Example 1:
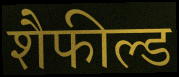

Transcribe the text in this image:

शैफील्ड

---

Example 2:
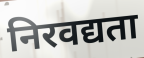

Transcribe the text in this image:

निरवद्यता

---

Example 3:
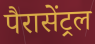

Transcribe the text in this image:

पैरासेंट्रल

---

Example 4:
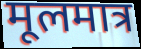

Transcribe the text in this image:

मूलमात्र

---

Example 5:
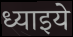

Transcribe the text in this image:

ध्याइये